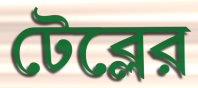
টেব্লের